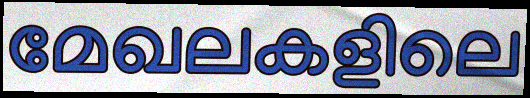
മേഖലകളിലെ